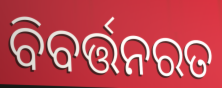
ବିବର୍ତ୍ତନରତ